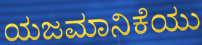
ಯಜಮಾನಿಕೆಯು